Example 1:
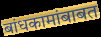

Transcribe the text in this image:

बांधकामांबाबत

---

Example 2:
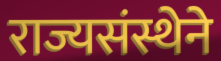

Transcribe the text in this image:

राज्यसंस्थेने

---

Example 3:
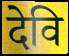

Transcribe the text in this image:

देवि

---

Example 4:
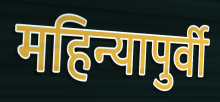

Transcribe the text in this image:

महिन्यापुर्वी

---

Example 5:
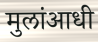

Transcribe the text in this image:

मुलांआधी